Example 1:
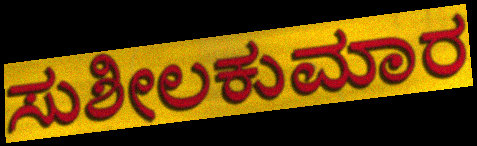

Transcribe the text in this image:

ಸುಶೀಲಕುಮಾರ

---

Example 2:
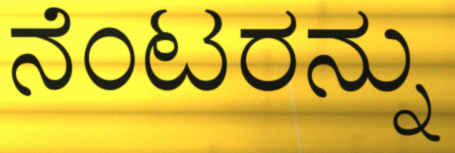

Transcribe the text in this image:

ನೆಂಟರನ್ನು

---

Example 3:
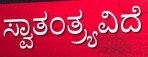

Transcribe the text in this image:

ಸ್ವಾತಂತ್ರ್ಯವಿದೆ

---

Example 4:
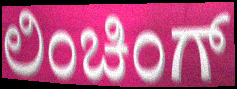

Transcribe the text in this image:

ಲಿಂಚಿಂಗ್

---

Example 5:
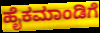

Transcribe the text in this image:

ಹೈಕಮಾಂಡಿಗೆ